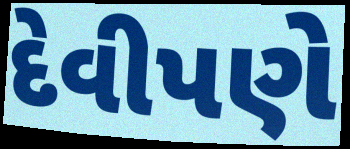
દેવીપણે